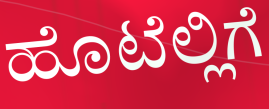
ಹೊಟೆಲ್ಲಿಗೆ